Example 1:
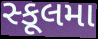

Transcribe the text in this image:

સ્કૂલમા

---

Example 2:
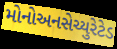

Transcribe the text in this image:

મોનોઅનસેચ્યુરેટેડ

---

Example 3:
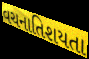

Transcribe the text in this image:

વચનાતિશયતા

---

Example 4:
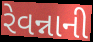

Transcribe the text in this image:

રેવન્નાની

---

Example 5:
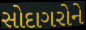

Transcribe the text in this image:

સોદાગરોને